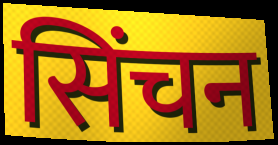
सिंचन